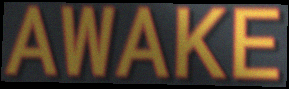
AWAKE